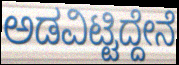
ಅಡವಿಟ್ಟಿದ್ದೇನೆ